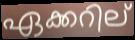
ഏക്കറില്